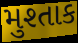
મુશ્તાક